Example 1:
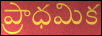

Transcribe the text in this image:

ప్రాధమిక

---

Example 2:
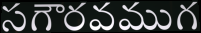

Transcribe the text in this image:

సగౌరవముగ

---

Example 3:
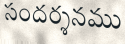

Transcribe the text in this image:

సందర్శనము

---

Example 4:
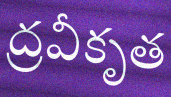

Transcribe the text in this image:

ద్రవీకృత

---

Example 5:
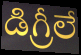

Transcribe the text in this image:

డిగ్రీలే